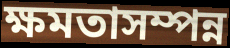
ক্ষমতাসম্পন্ন